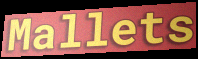
Mallets